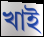
খাই